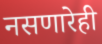
नसणारेही